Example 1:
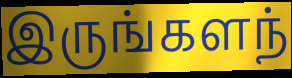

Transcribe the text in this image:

இருங்களந்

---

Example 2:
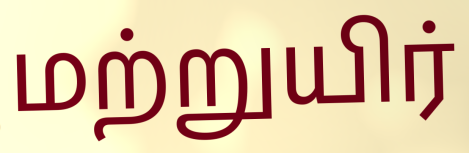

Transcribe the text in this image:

மற்றுயிர்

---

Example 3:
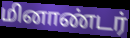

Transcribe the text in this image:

மினாண்டர்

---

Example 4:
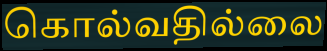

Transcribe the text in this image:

கொல்வதில்லை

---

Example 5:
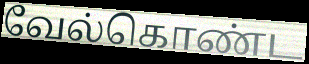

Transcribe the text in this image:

வேல்கொண்ட